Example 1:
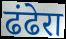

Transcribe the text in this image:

ढंढेरा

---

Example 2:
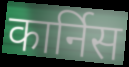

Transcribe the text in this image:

कार्निस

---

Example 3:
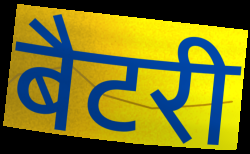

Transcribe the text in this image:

बैटरी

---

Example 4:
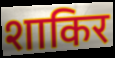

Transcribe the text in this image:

शाकिर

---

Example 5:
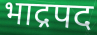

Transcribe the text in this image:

भाद्रपद